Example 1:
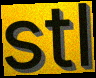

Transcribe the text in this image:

stl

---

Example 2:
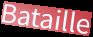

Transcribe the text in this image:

Bataille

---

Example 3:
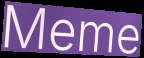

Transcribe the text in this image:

Meme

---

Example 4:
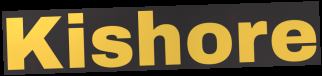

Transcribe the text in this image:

Kishore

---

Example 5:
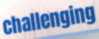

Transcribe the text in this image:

challenging